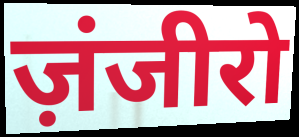
ज़ंजीरो